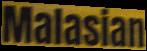
Malasian